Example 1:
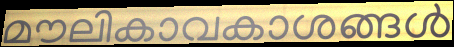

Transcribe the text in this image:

മൗലികാവകാശങ്ങൾ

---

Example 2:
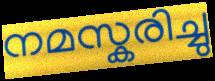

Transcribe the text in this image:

നമസ്കരിച്ചു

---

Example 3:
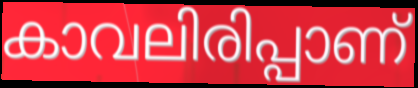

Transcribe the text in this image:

കാവലിരിപ്പാണ്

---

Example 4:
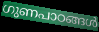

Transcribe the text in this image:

ഗുണപാഠങ്ങൾ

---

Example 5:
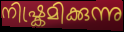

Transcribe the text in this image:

നിഷ്ക്രമിക്കുന്നു